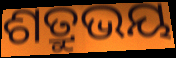
ଶତ୍ରୁଭୟ